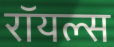
रॉयल्स